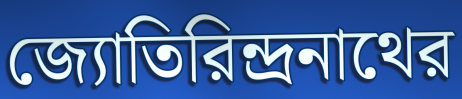
জ্যোতিরিন্দ্রনাথের